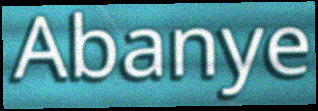
Abanye